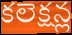
కలెక్షన్ల